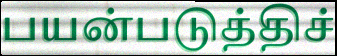
பயன்படுத்திச்